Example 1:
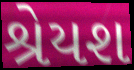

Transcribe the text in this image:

શ્રેયશ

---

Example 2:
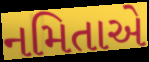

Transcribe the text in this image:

નમિતાએ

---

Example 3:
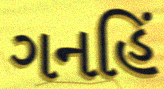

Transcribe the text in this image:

ગનહિં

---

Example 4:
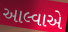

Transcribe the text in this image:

આલ્વાએ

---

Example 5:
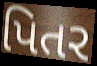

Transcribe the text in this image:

પિતર